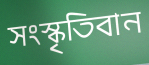
সংস্কৃতিবান